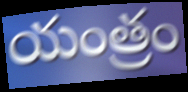
యంత్రం